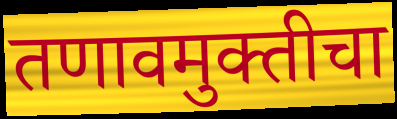
तणावमुक्तीचा